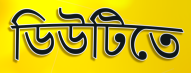
ডিউটিতে